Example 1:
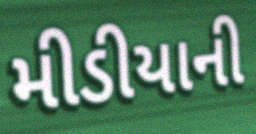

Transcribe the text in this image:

મીડીયાની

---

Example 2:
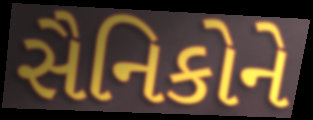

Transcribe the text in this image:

સૈનિકોને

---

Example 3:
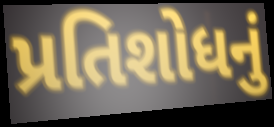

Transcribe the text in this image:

પ્રતિશોધનું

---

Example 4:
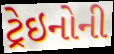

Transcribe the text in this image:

ટ્રેઇનોની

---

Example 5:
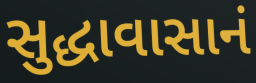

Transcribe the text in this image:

સુદ્ધાવાસાનં